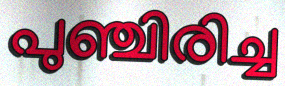
പുഞ്ചിരിച്ച